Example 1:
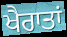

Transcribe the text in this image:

ਖੈਰਾਤਾਂ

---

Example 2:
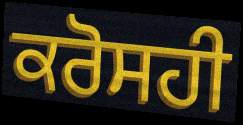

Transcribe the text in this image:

ਕਰੋਸਹੀ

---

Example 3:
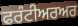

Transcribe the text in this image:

ਫਰੰਟੀਅਰਅਰ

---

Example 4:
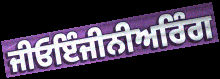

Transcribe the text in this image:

ਜੀਓਇੰਜੀਨੀਅਰਿੰਗ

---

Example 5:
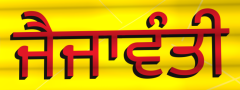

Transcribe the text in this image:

ਜੈਜਾਵੰਤੀ